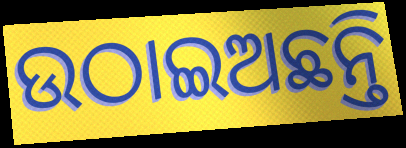
ଉଠାଇଅଛନ୍ତି